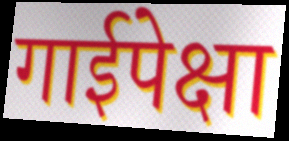
गाईपेक्षा